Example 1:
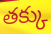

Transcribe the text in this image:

తక్కు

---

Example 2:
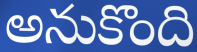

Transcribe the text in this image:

అనుకొంది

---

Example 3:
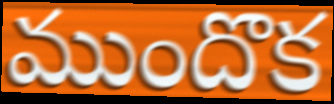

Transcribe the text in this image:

ముందొక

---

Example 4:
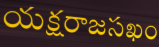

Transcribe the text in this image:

యక్షరాజసఖం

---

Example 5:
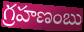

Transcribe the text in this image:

గ్రహణంబు